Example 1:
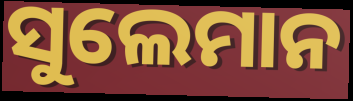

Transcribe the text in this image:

ସୁଲେମାନ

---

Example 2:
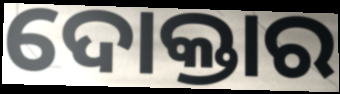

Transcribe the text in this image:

ଦୋକ୍ତାର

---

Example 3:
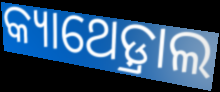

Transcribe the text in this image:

କ୍ୟାଥେଡ଼୍ରାଲ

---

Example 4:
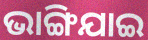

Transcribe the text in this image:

ଭାଙ୍ଗିଯାଇ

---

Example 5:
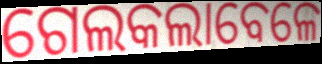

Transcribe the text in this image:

ଗେଲକଲାବେଳେ